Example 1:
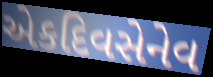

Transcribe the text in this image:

એકદિવસેનેવ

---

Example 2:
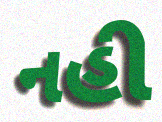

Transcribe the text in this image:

નહી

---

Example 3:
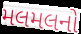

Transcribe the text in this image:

મલમલનો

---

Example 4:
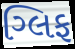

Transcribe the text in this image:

ગ્લિફ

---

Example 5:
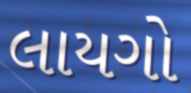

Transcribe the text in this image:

લાયગો